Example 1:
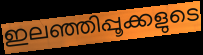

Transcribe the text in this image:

ഇലഞ്ഞിപ്പൂക്കളുടെ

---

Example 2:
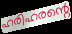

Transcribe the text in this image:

ഹരിഹരന്റെ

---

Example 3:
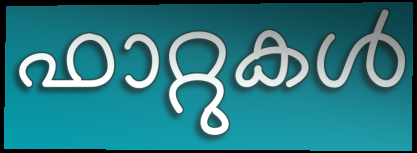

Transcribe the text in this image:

ഫാറ്റുകൾ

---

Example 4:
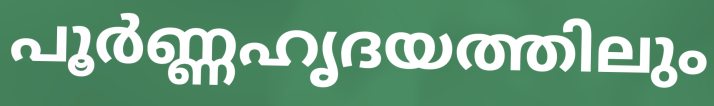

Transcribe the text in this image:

പൂർണ്ണഹൃദയത്തിലും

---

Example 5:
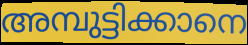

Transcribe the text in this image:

അമ്പുട്ടിക്കാനെ